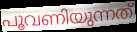
പൂവണിയുന്നത്